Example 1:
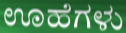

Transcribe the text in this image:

ಊಹೆಗಳು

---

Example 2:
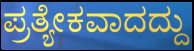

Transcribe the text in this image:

ಪ್ರತ್ಯೇಕವಾದದ್ದು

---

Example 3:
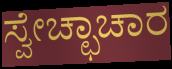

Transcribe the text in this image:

ಸ್ವೇಚ್ಛಾಚಾರ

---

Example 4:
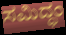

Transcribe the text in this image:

ಸಮಿದ್ಧಂ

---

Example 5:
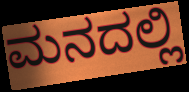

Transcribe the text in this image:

ಮನದಲ್ಲಿ